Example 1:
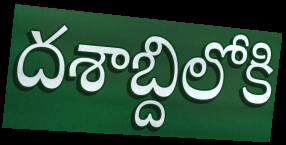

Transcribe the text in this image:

దశాబ్దిలోకి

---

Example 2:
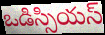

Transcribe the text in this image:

ఒడిస్సియస్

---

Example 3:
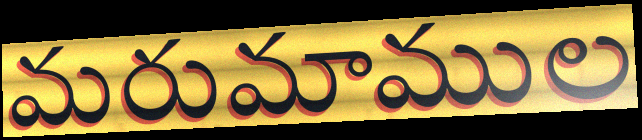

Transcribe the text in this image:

మరుమాముల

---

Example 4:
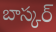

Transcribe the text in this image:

బాస్కర్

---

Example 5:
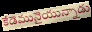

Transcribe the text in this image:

కేడెమునైయున్నాడు